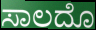
ಸಾಲದೊ